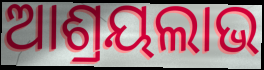
ଆଶ୍ରୟଲାଭ